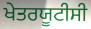
ਖੇਤਰਯੂਟੀਸੀ